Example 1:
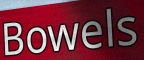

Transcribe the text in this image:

Bowels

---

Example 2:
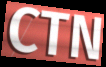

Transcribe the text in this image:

CTN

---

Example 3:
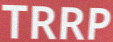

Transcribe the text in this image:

TRRP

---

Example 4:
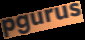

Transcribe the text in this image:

pgurus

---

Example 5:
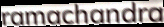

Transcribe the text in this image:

ramachandra